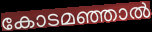
കോടമഞ്ഞാൽ